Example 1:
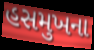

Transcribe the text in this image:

હસમુખના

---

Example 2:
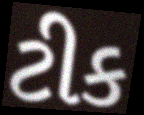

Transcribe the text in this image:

ટીક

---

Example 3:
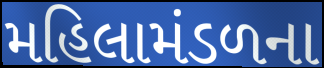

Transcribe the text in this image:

મહિલામંડળના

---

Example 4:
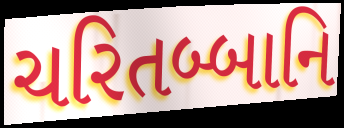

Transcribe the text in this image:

ચરિતબ્બાનિ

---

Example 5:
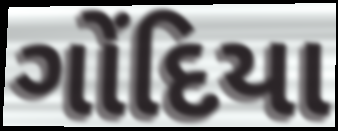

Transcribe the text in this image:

ગોંદિયા